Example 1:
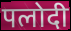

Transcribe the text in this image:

पलोदी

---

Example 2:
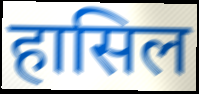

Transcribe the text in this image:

हासिल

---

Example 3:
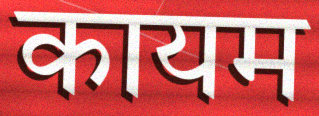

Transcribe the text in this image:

कायम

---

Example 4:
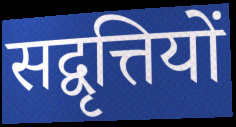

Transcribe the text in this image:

सद्वृत्तियों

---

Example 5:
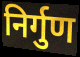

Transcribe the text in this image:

निर्गुण